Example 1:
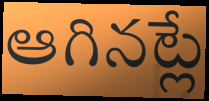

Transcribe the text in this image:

ఆగినట్లే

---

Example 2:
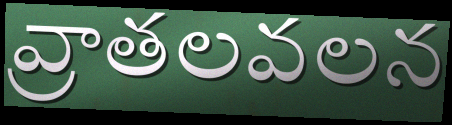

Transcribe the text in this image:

వ్రాతలవలన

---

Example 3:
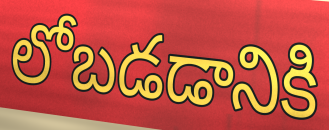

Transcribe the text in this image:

లోబడడానికి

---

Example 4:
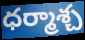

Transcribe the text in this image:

ధర్మాశ్చ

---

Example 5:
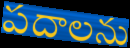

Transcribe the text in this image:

పదాలను